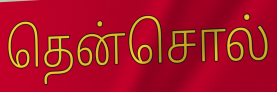
தென்சொல்